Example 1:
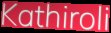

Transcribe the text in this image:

Kathiroli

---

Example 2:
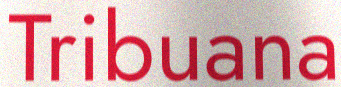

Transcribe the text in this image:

Tribuana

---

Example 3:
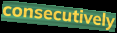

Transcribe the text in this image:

consecutively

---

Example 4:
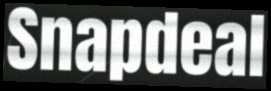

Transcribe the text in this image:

Snapdeal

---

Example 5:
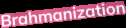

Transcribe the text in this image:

Brahmanization